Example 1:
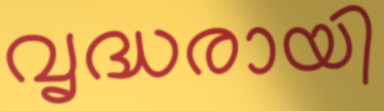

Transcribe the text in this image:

വൃദ്ധരായി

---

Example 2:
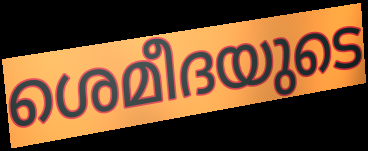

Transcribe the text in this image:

ശെമീദയുടെ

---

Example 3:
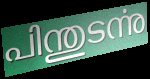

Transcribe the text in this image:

പിന്തുടൎന്നു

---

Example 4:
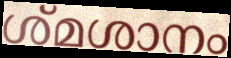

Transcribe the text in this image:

ശ്മശാനം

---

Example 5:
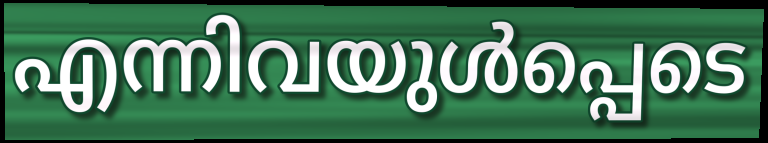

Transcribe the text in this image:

എന്നിവയുൾപ്പെടെ